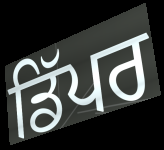
ਡਿੱਪਰ